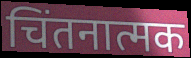
चिंतनात्मक